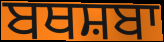
ਬਥਸ਼ਬਾ